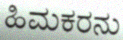
ಹಿಮಕರನು